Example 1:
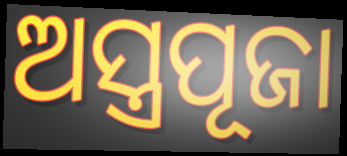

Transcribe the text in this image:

ଅସ୍ତ୍ରପୂଜା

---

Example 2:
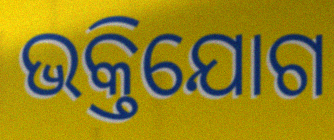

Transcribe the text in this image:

ଭକ୍ତିଯୋଗ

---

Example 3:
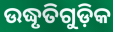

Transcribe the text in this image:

ଉଦ୍ଧୃତିଗୁଡ଼ିକ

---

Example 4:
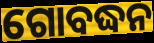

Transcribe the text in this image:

ଗୋବଦ୍ଧନ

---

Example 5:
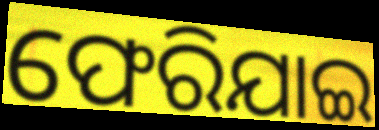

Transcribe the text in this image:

ଫେରିଯାଇ